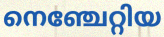
നെഞ്ചേറ്റിയ